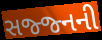
સજ્જ્નની